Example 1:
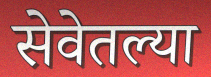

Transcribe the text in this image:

सेवेतल्या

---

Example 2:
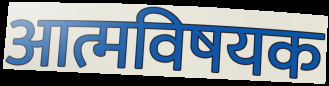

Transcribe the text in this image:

आत्मविषयक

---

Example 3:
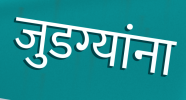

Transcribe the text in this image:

जुडग्यांना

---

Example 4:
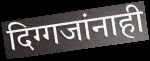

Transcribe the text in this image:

दिग्गजांनाही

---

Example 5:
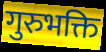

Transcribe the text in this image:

गुरुभक्ति